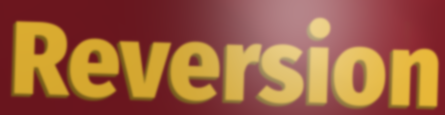
Reversion